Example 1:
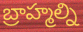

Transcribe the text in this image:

బ్రాహ్మల్ని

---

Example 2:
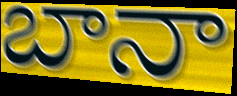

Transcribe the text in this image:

బానా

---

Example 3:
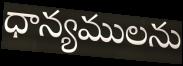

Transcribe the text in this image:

ధాన్యములను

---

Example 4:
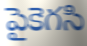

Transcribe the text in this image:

పైకెగసి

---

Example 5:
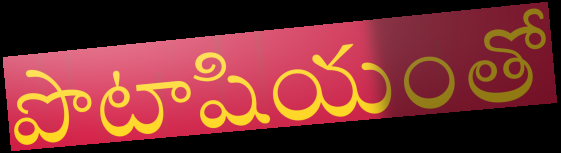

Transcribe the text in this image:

పొటాషియంతో